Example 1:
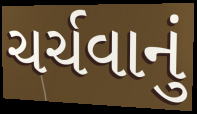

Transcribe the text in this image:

ચર્ચવાનું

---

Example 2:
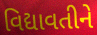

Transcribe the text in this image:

વિદ્યાવતીને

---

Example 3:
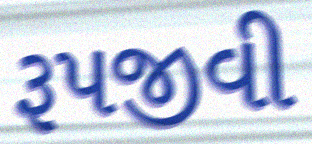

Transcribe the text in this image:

રૂપજીવી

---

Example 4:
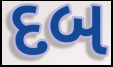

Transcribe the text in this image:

દબ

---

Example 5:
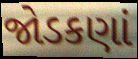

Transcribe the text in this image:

જોડકણાં